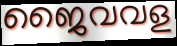
ജൈവവള